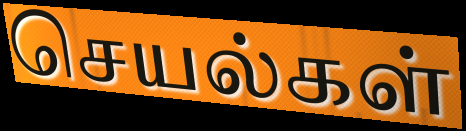
செயல்கள்